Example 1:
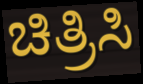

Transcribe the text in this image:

ಚಿತ್ರಿಸಿ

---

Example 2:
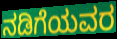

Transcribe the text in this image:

ನಡಿಗೆಯವರ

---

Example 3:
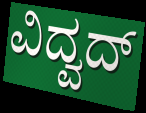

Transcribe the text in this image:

ವಿದ್ವದ್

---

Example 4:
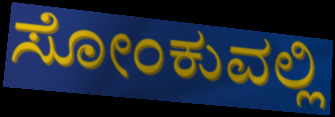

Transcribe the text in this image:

ಸೋಂಕುವಲ್ಲಿ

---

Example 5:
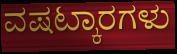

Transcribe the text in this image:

ವಷಟ್ಕಾರಗಳು